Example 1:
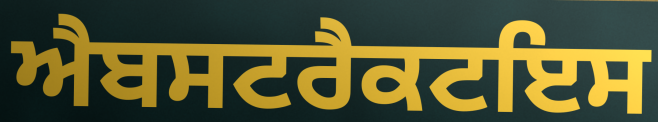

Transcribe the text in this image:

ਐਬਸਟਰੈਕਟਇਸ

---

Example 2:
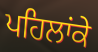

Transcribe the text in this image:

ਪਹਿਲਾਂਕੇ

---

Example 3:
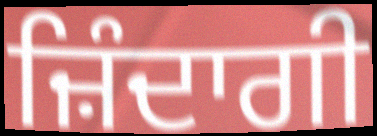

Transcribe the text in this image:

ਜ਼ਿੰਦਾਗੀ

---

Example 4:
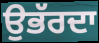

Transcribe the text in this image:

ਉਭੱਰਦਾ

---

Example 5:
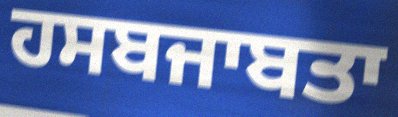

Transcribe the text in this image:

ਹਸਬਜਾਬਤਾ